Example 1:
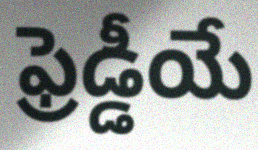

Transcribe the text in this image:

ఫ్రెడ్డీయే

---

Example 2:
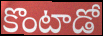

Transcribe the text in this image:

కొంటాడో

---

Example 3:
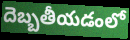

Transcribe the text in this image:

దెబ్బతీయడంలో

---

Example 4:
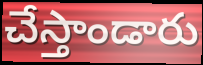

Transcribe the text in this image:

చేస్తాండారు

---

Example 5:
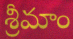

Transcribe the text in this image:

శ్రీమాం